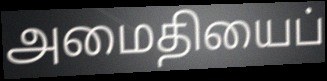
அமைதியைப்